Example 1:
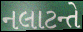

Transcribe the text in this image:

નલાટન્તે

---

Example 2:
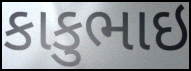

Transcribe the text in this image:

કાકુભાઇ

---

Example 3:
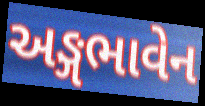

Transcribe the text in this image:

અઙ્ગભાવેન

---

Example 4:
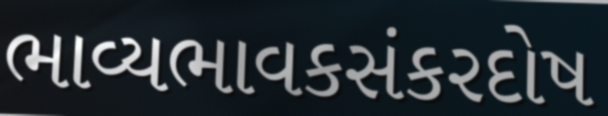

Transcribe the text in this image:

ભાવ્યભાવકસંકરદોષ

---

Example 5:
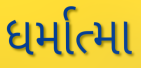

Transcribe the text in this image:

ધર્માત્મા